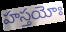
హస్తయోః